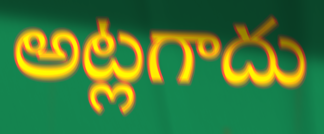
అట్లగాదు